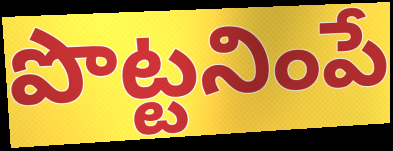
పొట్టనింపే